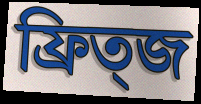
ফ্রিত্জ